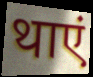
थाएं